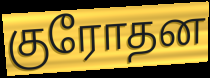
குரோதன